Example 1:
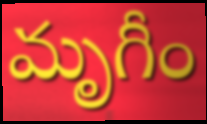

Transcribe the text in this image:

మృగీం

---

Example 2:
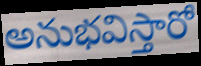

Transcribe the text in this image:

అనుభవిస్తారో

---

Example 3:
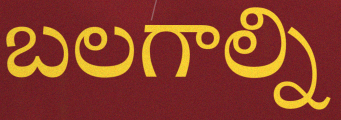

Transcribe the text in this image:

బలగాల్ని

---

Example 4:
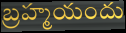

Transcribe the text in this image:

బ్రహ్మయందు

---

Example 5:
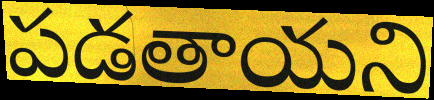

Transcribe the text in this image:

పడతాయని